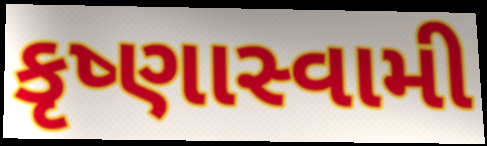
કૃષ્ણાસ્વામી